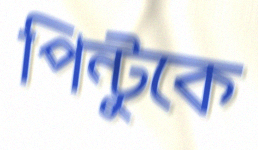
পিন্টুকে